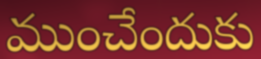
ముంచేందుకు